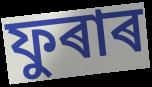
ফুৰাৰ